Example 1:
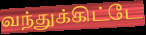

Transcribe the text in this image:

வந்துக்கிட்டே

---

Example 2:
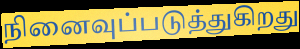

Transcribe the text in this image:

நினைவுப்படுத்துகிறது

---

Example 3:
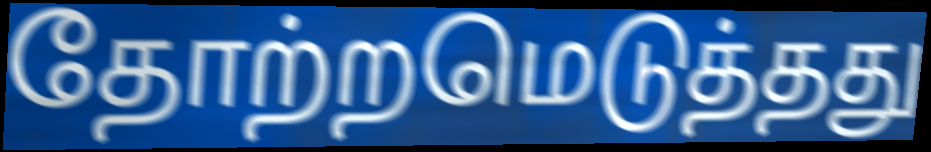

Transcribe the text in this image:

தோற்றமெடுத்தது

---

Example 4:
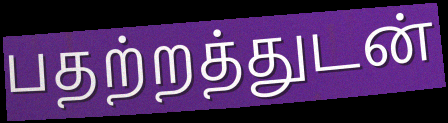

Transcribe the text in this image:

பதற்றத்துடன்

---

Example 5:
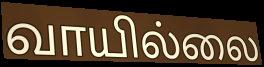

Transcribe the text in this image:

வாயில்லை